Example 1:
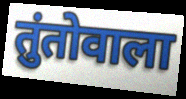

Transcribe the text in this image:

तुंतोवाला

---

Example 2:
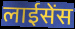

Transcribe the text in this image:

लाईसेंस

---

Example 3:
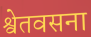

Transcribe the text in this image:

श्वेतवसना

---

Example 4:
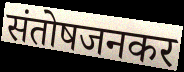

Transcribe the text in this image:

संतोषजनकर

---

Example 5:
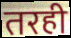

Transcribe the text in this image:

तरही